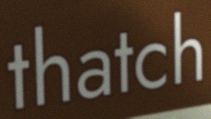
thatch